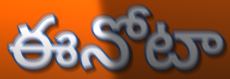
ఈనోటా